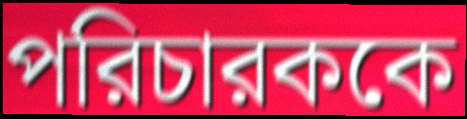
পরিচারককে